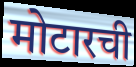
मोटारची